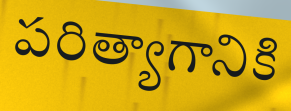
పరిత్యాగానికి